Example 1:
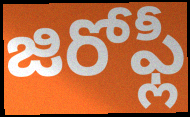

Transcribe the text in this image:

జిరోఫ్లీ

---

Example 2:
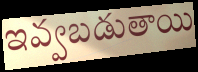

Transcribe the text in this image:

ఇవ్వబడుతాయి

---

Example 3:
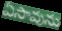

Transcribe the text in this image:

ఏసావును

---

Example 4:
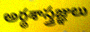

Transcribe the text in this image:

అర్థశాస్త్రజ్ఞులు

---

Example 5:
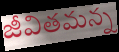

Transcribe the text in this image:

జీవితమన్న